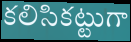
కలిసికట్టుగా